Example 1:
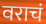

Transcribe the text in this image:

वराचं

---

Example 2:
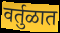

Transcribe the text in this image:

वर्तुळात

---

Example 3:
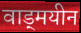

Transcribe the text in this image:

वाड्‌मयीन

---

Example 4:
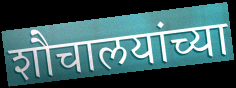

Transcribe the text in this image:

शौचालयांच्या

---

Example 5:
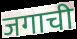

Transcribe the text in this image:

जगाची